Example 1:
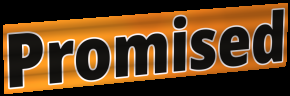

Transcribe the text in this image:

Promised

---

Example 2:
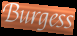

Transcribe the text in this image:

Burgess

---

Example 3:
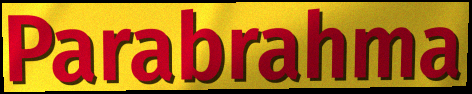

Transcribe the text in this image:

Parabrahma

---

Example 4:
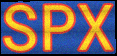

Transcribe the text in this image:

SPX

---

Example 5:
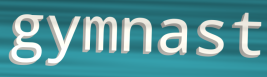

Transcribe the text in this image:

gymnast